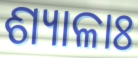
ଶ୍ୟାଳାଃ